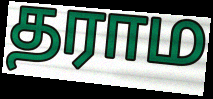
தராம